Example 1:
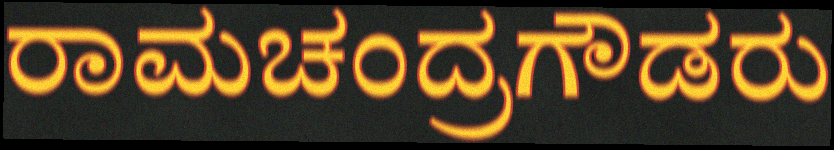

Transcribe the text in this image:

ರಾಮಚಂದ್ರಗೌಡರು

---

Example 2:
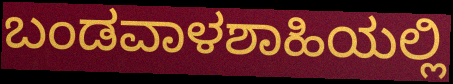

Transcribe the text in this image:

ಬಂಡವಾಳಶಾಹಿಯಲ್ಲಿ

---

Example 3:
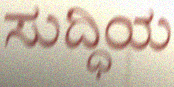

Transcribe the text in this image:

ಸುದ್ಧಿಯ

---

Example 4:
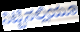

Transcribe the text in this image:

ನಿಟ್ಟಿನಲ್ಲಿಯೂ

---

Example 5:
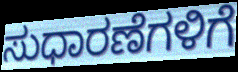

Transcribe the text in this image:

ಸುಧಾರಣೆಗಳಿಗೆ